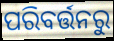
ପରିବର୍ତ୍ତନରୁ